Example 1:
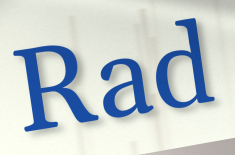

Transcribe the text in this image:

Rad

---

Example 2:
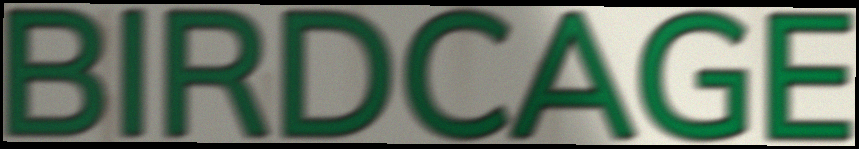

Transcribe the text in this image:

BIRDCAGE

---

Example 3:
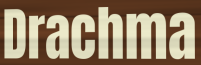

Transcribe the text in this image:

Drachma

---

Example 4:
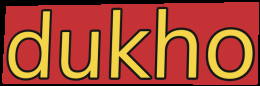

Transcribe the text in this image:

dukho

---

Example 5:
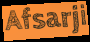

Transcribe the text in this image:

Afsarji